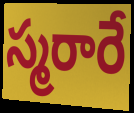
స్మరారే